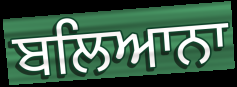
ਬਲਿਆਨਾ